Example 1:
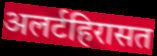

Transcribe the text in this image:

अलर्टहिरासत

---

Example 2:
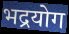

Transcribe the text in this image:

भद्रयोग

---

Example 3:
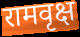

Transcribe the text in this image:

रामवृक्ष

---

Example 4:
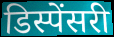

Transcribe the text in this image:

डिस्पेंसरी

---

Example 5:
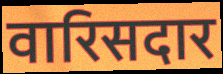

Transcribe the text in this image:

वारिसदार